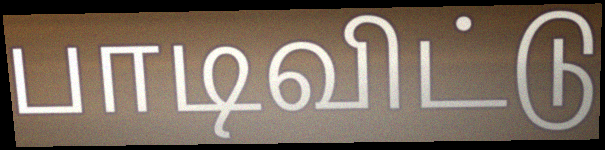
பாடிவிட்டு